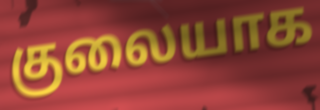
குலையாக